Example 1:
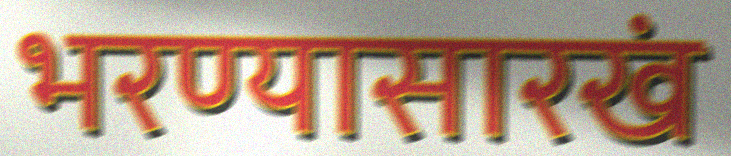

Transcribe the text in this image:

भरण्यासारखं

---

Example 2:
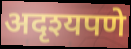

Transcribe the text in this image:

अदृश्यपणे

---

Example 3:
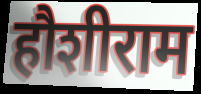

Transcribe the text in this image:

हौशीराम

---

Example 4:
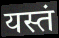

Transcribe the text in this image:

यस्तं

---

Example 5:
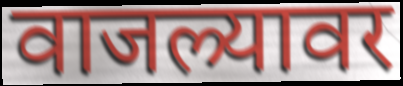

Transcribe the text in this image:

वाजल्यावर